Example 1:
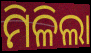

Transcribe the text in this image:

ମିଳିଲା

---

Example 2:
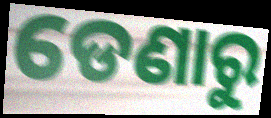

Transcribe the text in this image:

ଡେଣାରୁ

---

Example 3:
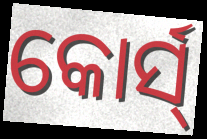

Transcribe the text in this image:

କୋର୍ସ୍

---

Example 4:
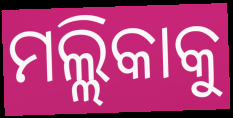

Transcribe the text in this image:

ମଲ୍ଲିକାକୁ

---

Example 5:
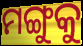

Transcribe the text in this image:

ମଙ୍ଗୁକୁ